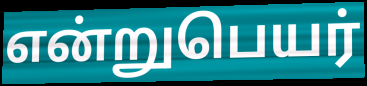
என்றுபெயர்